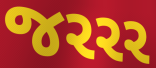
જરરર